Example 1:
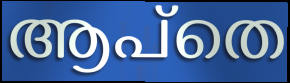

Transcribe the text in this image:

ആപ്‌തെ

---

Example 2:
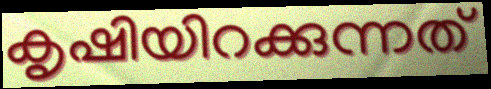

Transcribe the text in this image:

കൃഷിയിറക്കുന്നത്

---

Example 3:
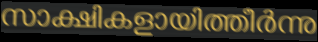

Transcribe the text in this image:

സാക്ഷികളായിത്തീർന്നു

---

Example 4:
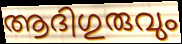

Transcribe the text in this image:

ആദിഗുരുവും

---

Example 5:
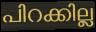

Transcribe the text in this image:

പിറക്കില്ല